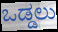
ಒಡ್ಡಲು